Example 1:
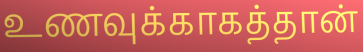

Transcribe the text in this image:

உணவுக்காகத்தான்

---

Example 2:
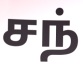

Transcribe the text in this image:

சந்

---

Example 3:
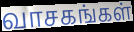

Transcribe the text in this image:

வாசகங்கள்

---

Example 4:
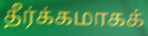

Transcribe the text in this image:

தீர்க்கமாகக்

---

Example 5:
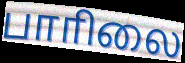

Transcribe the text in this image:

பாரிலை